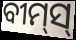
ବୀମ୍‌ସ୍